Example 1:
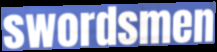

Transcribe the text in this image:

swordsmen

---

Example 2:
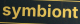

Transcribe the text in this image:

symbiont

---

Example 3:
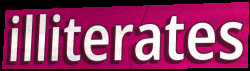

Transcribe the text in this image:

illiterates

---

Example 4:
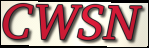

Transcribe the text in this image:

CWSN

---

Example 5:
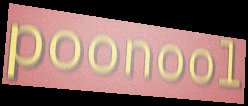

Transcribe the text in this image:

poonool